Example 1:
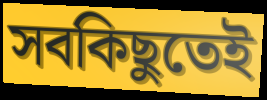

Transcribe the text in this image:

সবকিছুতেই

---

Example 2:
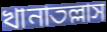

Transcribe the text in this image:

খানাতল্লাস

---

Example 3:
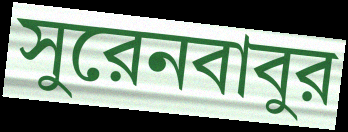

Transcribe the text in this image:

সুরেনবাবুর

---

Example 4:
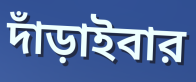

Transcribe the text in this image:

দাঁড়াইবার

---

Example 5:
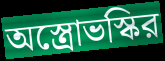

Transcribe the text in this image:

অস্ত্রোভস্কির